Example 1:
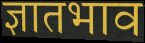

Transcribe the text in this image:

ज्ञातभाव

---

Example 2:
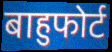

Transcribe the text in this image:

बाहुफोर्ट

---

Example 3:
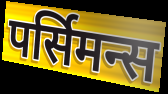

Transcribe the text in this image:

पर्सिमन्स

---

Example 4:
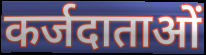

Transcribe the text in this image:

कर्जदाताओं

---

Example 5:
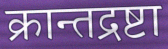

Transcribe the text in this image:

क्रान्तद्रष्टा